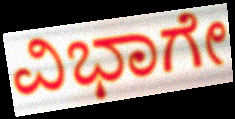
ವಿಭಾಗೇ